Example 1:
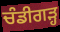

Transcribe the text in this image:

ਚੰਡੀਗੜ੍ਹ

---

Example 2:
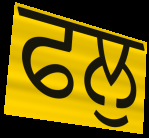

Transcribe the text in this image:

ਫਲੁ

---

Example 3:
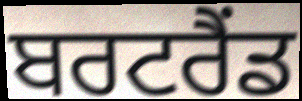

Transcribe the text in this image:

ਬਰਟਰੈਂਡ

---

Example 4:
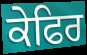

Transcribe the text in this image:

ਕੇਫਿਰ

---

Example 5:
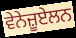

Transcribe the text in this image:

ਵੇਨੇਜ਼ੂਏਲਨ